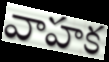
వాహక